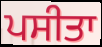
ਪਸੀਤਾ